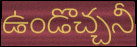
ఉండొచ్చనీ